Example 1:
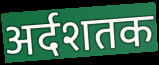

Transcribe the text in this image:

अर्दशतक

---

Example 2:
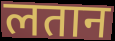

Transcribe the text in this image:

लतान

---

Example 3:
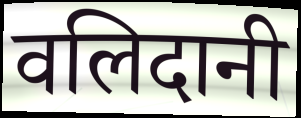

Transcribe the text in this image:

वलिदानी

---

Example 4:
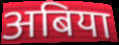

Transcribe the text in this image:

अबिया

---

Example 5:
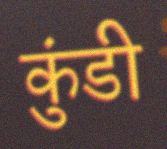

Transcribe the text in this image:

कुंडी